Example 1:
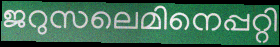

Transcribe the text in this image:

ജറുസലെമിനെപ്പറ്റി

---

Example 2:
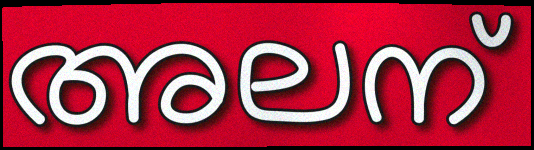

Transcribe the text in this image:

അലന്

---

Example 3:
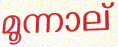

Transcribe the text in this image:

മൂന്നാല്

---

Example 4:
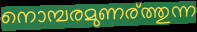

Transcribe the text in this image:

നൊമ്പരമുണര്ത്തുന്ന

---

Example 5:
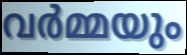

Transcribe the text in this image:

വർമ്മയും